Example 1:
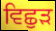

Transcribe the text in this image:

ਵਿਛੁੜ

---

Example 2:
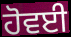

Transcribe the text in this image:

ਹੋਵਈ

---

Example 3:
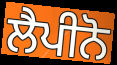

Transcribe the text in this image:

ਲੈਪੀਨੋ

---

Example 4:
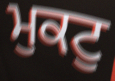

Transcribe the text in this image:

ਮੁਕਟੁ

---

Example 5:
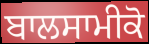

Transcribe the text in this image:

ਬਾਲਸਾਮੀਕੋ